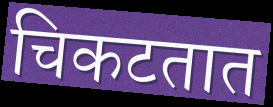
चिकटतात